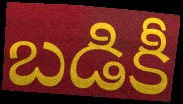
బడికీ